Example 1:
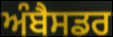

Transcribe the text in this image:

ਅੰਬੈਸਡਰ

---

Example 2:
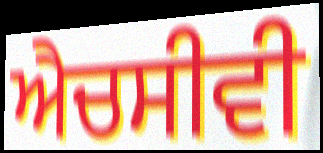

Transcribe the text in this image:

ਐਚਸੀਵੀ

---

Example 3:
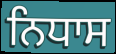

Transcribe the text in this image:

ਨਿਧਾਸ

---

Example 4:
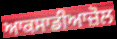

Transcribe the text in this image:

ਆਕਸਾਡੀਆਜ਼ੋਲ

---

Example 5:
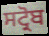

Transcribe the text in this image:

ਸਟ੍ਰੋਬ